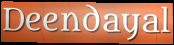
Deendayal